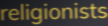
religionists